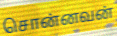
சொன்னவன்